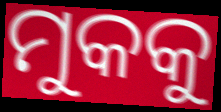
ମୁକକୁ